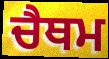
ਚੈਥਮ